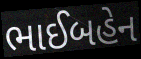
ભાઈબહેન